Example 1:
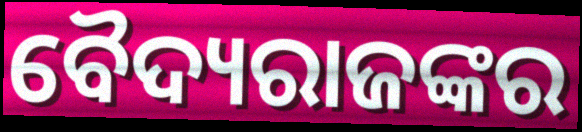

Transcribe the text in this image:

ବୈଦ୍ୟରାଜଙ୍କର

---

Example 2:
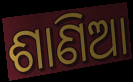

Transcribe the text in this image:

ଶାଣିଆ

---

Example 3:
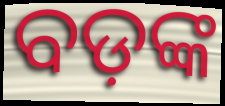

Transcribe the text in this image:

ବଡ଼ଙ୍କ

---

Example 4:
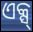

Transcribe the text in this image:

ଏକ୍ସ୍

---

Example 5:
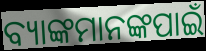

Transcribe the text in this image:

ବ୍ୟାଙ୍କମାନଙ୍କପାଇଁ